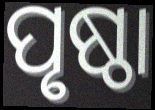
ପୃଷ୍ଠା